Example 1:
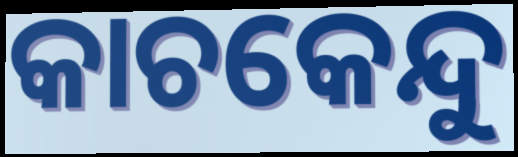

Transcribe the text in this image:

କାଚକେନ୍ଦୁ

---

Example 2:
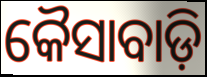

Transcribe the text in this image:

କୈସାବାଡ଼ି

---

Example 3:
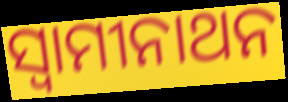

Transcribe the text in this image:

ସ୍ବାମୀନାଥନ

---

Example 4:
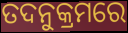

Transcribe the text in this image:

ତଦନୁକ୍ରମରେ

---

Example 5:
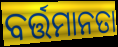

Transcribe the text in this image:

ବର୍ତ୍ତମାନତା